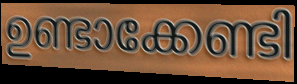
ഉണ്ടാക്കേണ്ടി